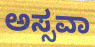
ಅಸ್ಸವಾ